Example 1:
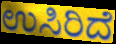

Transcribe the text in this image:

ಉಸಿರಿದೆ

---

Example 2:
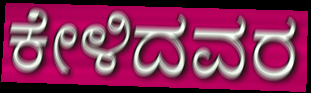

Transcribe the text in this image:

ಕೇಳಿದವರ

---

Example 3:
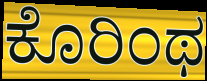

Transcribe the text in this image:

ಕೊರಿಂಥ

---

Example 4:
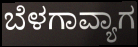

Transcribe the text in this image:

ಬೆಳಗಾವ್ಯಾಗ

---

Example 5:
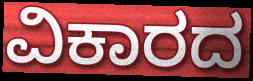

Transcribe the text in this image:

ವಿಕಾರದ